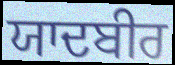
ਯਾਦਬੀਰ